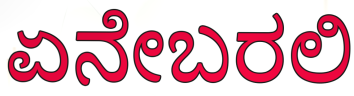
ಏನೇಬರಲಿ